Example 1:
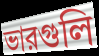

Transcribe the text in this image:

ভারগুলি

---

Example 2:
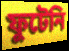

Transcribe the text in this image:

ফুটেনি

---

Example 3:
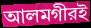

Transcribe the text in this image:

আলমগীরই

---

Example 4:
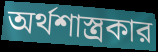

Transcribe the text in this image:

অর্থশাস্ত্রকার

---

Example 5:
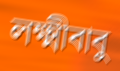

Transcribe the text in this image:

লক্ষ্মীবাবু